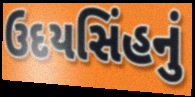
ઉદયસિંહનું